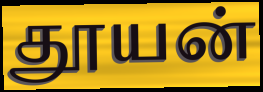
தூயன்